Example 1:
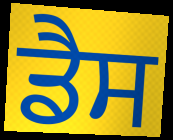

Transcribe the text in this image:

ਡੈਸ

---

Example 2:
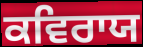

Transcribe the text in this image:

ਕਵਿਰਾਯ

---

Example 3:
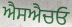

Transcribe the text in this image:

ਐਸਐਚਓ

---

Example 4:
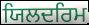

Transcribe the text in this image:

ਯਿਲਦਰਿਮ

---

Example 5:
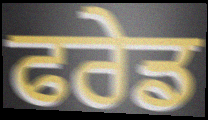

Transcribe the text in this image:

ਫਰੇਡ